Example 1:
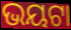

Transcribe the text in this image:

ଭୟଟା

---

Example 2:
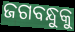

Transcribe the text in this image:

ଜଗବନ୍ଧୁକୁ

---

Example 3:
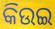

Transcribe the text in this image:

କିଉଇ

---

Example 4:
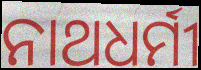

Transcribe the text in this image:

ନାଥଧର୍ମୀ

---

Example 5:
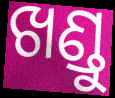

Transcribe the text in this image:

ଖଣ୍ଡୁ